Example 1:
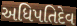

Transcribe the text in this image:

અધિપતિદેવ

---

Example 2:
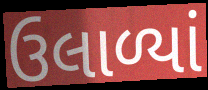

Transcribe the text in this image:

ઉલાળ્યાં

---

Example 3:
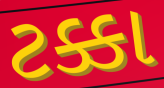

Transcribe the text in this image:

ટક્કા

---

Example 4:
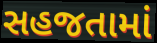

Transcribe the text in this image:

સહજતામાં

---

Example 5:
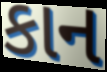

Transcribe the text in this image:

કાન